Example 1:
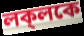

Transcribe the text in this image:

লক্‌লকে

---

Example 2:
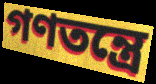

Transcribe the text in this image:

গণতন্ত্রে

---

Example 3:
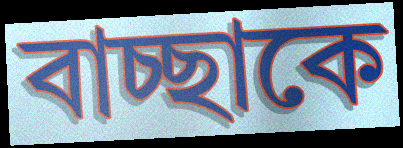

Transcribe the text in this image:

বাচ্ছাকে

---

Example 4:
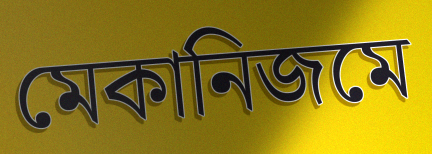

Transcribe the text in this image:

মেকানিজমে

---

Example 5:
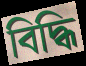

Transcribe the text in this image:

বিদ্ধি